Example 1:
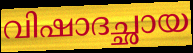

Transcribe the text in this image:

വിഷാദച്ഛായ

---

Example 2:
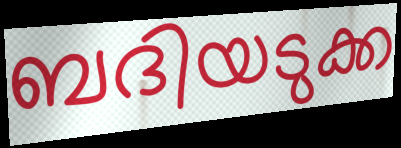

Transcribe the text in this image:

ബദിയടുക്ക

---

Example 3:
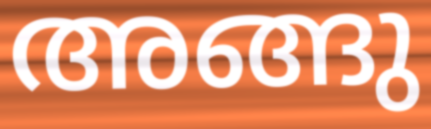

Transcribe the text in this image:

അങ്ങു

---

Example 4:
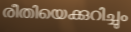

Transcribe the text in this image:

രീതിയെക്കുറിച്ചും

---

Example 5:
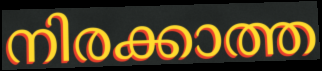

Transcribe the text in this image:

നിരക്കാത്ത